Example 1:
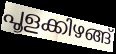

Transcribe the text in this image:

പൂളക്കിഴങ്ങ്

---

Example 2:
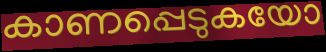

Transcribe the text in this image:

കാണപ്പെടുകയോ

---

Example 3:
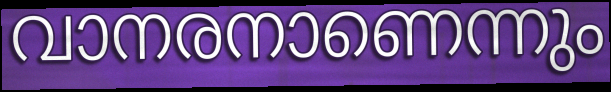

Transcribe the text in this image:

വാനരനാണെന്നും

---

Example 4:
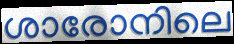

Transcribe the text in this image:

ശാരോനിലെ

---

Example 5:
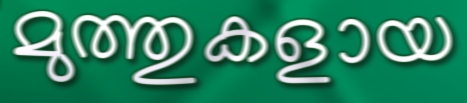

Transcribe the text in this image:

മുത്തുകളായ